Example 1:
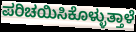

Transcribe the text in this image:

ಪರಿಚಯಿಸಿಕೊಳ್ಳುತ್ತಾಳೆ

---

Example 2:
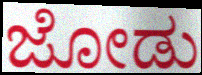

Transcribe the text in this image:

ಜೋಡು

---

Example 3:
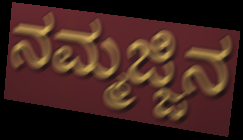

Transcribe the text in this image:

ನಮ್ಮಜ್ಜಿನ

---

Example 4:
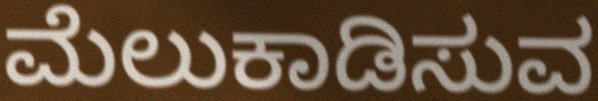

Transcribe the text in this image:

ಮೆಲುಕಾಡಿಸುವ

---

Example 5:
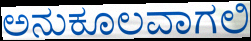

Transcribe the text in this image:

ಅನುಕೂಲವಾಗಲಿ